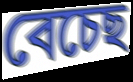
বেচেছ